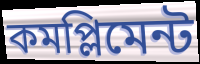
কমপ্লিমেন্ট